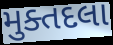
મુક્તદલા